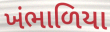
ખંભાળિયા